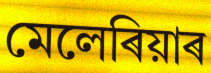
মেলেৰিয়াৰ